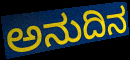
ಅನುದಿನ